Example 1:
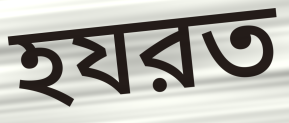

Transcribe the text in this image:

হযরত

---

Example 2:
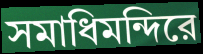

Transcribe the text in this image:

সমাধিমন্দিরে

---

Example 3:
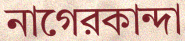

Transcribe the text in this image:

নাগেরকান্দা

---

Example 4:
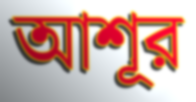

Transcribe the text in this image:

আশূর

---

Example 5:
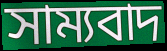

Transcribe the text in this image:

সাম্যবাদ